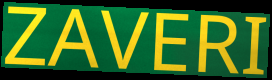
ZAVERI